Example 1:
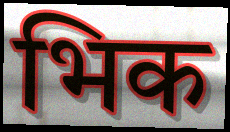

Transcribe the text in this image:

भिक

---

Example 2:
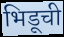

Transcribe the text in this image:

भिडूची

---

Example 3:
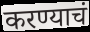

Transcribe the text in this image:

करण्याचं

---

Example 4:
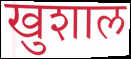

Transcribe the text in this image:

खुशाल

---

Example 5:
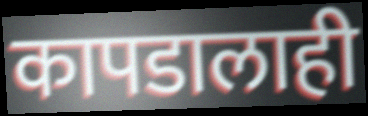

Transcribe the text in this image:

कापडालाही